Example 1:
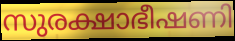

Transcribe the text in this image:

സുരക്ഷാഭീഷണി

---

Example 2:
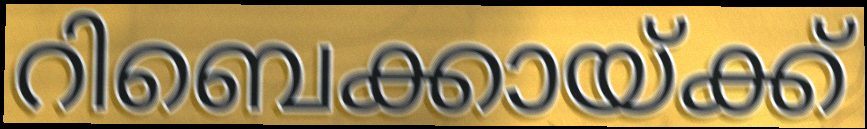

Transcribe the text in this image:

റിബെക്കായ്ക്ക്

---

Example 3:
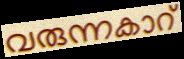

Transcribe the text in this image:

വരുന്നകാറ്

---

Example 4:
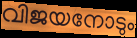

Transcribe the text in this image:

വിജയനോടും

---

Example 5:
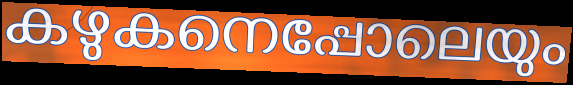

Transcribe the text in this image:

കഴുകനെപ്പോലെയും